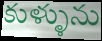
కుళ్ళును